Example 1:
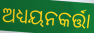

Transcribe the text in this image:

ଅଧ୍ୟୟନକର୍ତ୍ତା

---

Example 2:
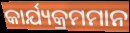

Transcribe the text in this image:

କାର୍ଯ୍ୟକ୍ରମମାନ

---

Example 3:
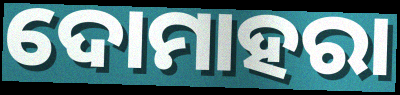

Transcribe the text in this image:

ଦୋମାହରା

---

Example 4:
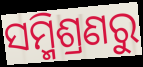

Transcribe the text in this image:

ସମ୍ମିଶ୍ରଣରୁ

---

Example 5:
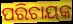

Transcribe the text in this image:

ପରିଚାୟକ